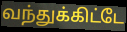
வந்துக்கிட்டே